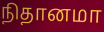
நிதானமா